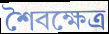
শৈবক্ষেত্র